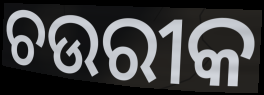
ଚଉରୀକ